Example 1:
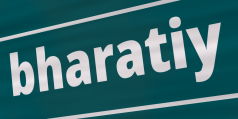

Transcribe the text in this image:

bharatiy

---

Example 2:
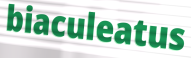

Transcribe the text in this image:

biaculeatus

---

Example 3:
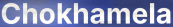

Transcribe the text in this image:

Chokhamela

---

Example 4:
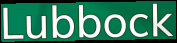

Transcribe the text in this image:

Lubbock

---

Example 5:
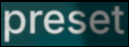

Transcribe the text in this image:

preset